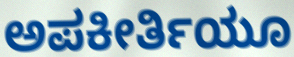
ಅಪಕೀರ್ತಿಯೂ